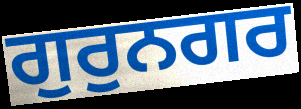
ਗੁਰੁਨਗਰ